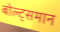
बोल्ट्समान